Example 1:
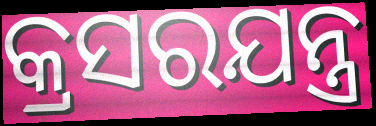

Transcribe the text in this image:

କ୍ରସରଯନ୍ତ୍ର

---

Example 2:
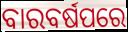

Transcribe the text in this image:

ବାରବର୍ଷପରେ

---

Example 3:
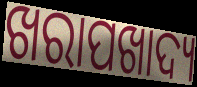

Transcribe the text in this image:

ଖରାପଖାଦ୍ୟ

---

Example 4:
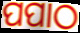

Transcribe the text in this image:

ପପାଠ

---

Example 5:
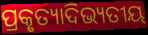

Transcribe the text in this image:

ପ୍ରକୃତ୍ୟାଦିଭ୍ୟତୀୟ